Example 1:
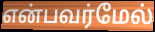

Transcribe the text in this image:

என்பவர்மேல்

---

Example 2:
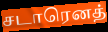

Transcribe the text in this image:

சடாரெனத்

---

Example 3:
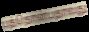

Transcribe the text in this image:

பத்தொன்பதாவது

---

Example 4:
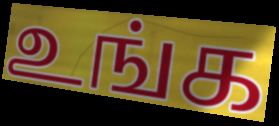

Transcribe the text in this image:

உங்க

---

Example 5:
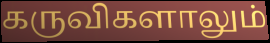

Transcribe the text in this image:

கருவிகளாலும்